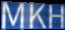
MKH